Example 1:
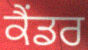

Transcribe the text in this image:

ਕੈਂਡਰ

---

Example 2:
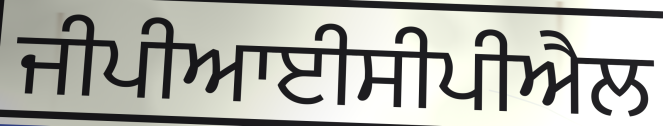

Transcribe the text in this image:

ਜੀਪੀਆਈਸੀਪੀਐਲ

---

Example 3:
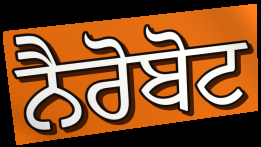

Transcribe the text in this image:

ਨੈਰੋਬੋਟ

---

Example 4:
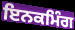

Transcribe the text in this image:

ਇਨਕਮਿੰਗ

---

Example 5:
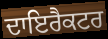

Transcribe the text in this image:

ਦਾਇਰੈਕਟਰ